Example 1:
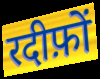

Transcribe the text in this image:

रदीफ़ों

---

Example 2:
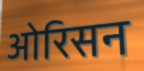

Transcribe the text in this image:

ओरिसन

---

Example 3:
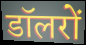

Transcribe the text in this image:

डॉलरों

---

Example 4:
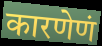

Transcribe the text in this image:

कारणेणं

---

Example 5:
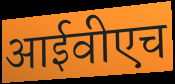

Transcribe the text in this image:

आईवीएच